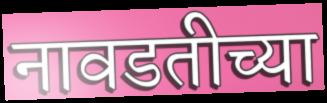
नावडतीच्या